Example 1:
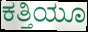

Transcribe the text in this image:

ಕತ್ತಿಯೂ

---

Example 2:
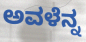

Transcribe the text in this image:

ಅವಳೆನ್ನ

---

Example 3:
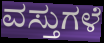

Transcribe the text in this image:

ವಸ್ತುಗಳೆ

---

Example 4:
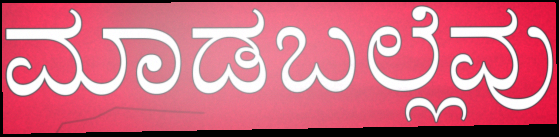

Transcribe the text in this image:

ಮಾಡಬಲ್ಲೆವು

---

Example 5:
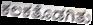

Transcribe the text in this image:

ಕಲಕತೊಡಗಿತು